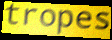
tropes